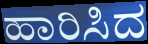
ಹಾರಿಸಿದ